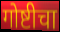
गोष्टीचा